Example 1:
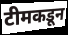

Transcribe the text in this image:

टीमकडून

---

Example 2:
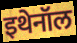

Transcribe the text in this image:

इथेनॉल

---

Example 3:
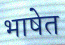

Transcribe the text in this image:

भाषेत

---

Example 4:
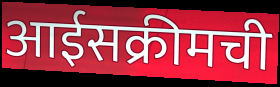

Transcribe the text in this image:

आईसक्रीमची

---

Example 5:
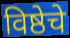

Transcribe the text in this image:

विष्ठेचे